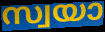
സ്വയാ